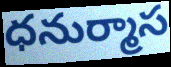
ధనుర్మాస